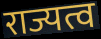
राज्यत्व